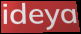
ideya